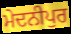
ਮੇਦਨੀਪੁਰ